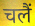
चलैं